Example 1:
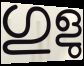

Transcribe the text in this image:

ഗുളു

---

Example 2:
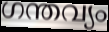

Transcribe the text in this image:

ഗന്തവ്യം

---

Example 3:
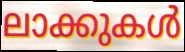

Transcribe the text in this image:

ലാക്കുകൾ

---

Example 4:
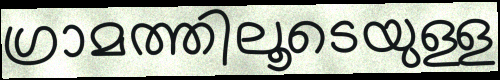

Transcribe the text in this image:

ഗ്രാമത്തിലൂടെയുള്ള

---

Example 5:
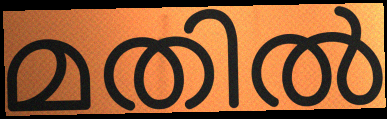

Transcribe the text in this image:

മതിൽ